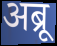
अब्रू